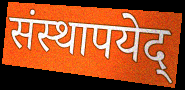
संस्थापयेद्